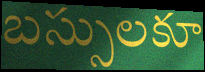
బస్సులకూ